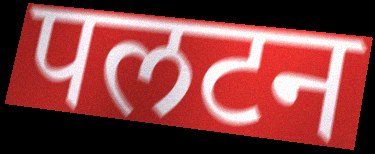
पलटन